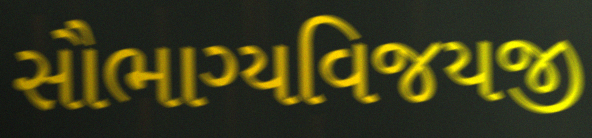
સૌભાગ્યવિજયજી